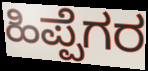
ಹಿಪ್ಪೆಗರ